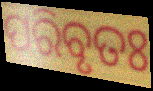
ପରିବୃତଃ